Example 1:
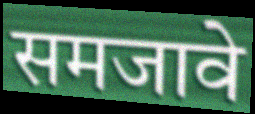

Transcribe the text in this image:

समजावे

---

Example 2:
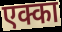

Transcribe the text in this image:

एक्का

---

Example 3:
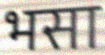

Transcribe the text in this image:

भसा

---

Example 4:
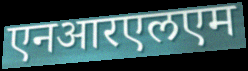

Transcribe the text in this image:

एनआरएलएम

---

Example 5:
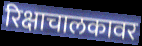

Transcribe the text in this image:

रिक्षाचालकावर